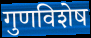
गुणविशेष